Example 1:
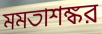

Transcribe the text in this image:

মমতাশঙ্কর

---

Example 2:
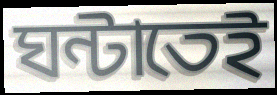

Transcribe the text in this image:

ঘন্টাতেই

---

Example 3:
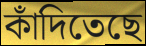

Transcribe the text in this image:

কাঁদিতেছে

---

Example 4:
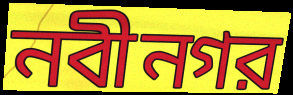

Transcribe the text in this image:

নবীনগর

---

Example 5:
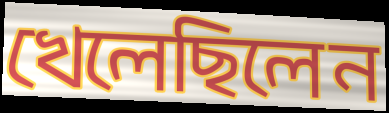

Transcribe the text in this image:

খেলেছিলেন